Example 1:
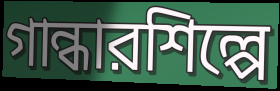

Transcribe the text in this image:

গান্ধারশিল্পে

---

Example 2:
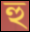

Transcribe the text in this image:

হু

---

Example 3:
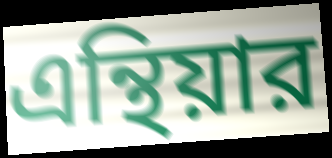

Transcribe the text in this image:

এন্থিয়ার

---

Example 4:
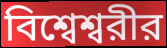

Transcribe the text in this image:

বিশ্বেশ্বরীর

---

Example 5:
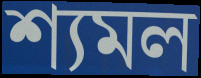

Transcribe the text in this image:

শ্যমল